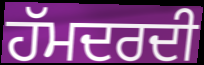
ਹੱਮਦਰਦੀ